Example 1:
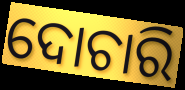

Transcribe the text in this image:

ଦୋଚାରି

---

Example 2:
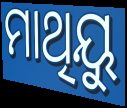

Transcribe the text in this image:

ମାଥିୟୁ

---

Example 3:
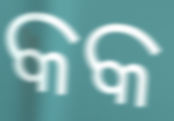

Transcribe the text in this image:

କକ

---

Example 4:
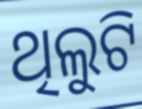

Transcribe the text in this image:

ଥିଲୁଟି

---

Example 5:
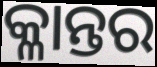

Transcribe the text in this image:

କ୍ଳାନ୍ତର